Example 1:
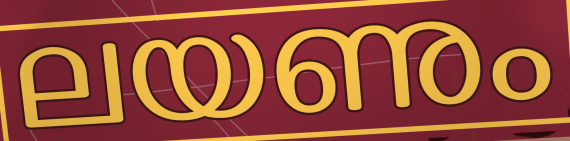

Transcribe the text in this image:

ലയണും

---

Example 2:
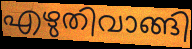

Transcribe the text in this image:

എഴുതിവാങ്ങി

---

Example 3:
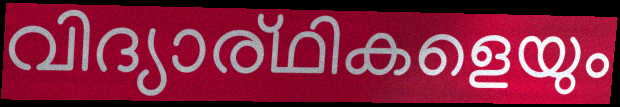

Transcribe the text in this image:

വിദ്യാര്ഥികളെയും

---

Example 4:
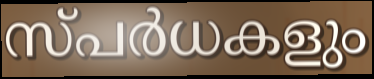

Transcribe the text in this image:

സ്പർധകളും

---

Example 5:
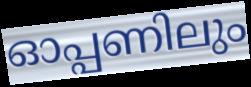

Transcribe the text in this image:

ഓപ്പണിലും